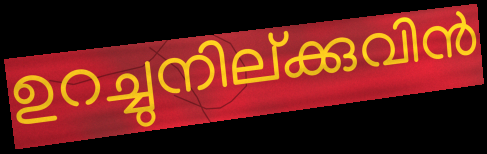
ഉറച്ചുനില്ക്കുവിൻ